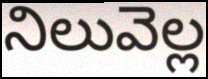
నిలువెల్ల